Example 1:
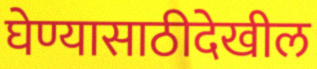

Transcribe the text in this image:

घेण्यासाठीदेखील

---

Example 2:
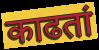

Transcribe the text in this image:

काढतां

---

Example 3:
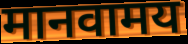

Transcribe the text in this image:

मानवामय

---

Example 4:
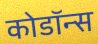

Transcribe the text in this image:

कोडॉन्स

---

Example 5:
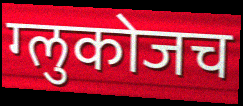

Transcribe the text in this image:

ग्लुकोजच